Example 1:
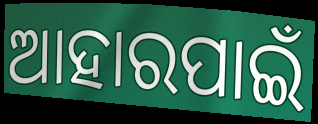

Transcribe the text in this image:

ଆହାରପାଇଁ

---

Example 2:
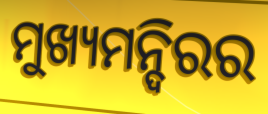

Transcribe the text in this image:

ମୁଖ୍ୟମନ୍ଦିରର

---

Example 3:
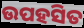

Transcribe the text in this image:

ଉପହସିତ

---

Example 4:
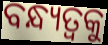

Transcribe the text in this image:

ବନ୍ଧ୍ୟତ୍ୱକୁ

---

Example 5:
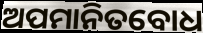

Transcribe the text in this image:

ଅପମାନିତବୋଧ